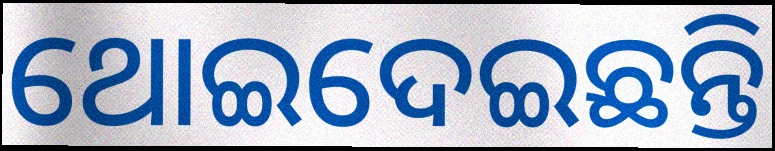
ଥୋଇଦେଇଛନ୍ତି